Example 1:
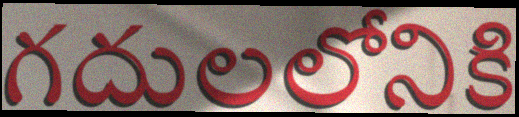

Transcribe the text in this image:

గదులలోనికి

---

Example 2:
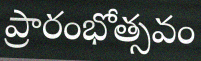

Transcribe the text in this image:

ప్రారంభోత్సవం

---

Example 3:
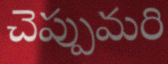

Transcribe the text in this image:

చెప్పుమరి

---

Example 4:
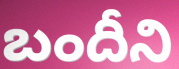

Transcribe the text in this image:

బందీని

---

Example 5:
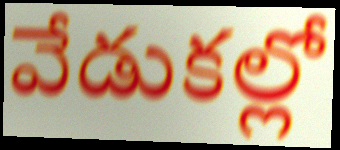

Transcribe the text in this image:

వేడుకల్లో